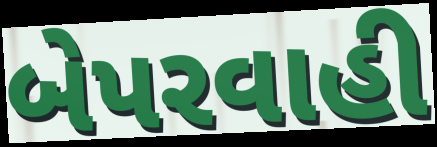
બેપરવાહી